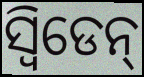
ସ୍ଵିଡେନ୍